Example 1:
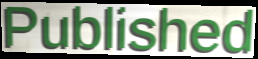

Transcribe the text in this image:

Published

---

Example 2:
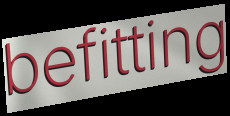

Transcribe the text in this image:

befitting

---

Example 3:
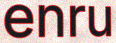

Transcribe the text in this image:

enru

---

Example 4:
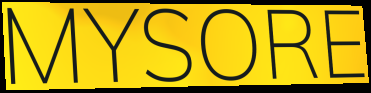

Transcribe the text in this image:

MYSORE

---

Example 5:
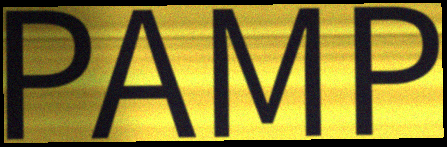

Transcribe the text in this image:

PAMP